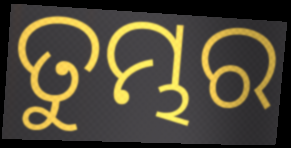
ତୁମ୍ଭର